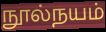
நூல்நயம்